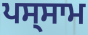
ਪਸ੍ਸਾਮ